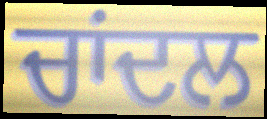
ਚਾਂਦਲ